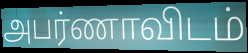
அபர்ணாவிடம்